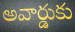
అవార్డుకు